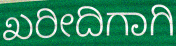
ಖರೀದಿಗಾಗಿ